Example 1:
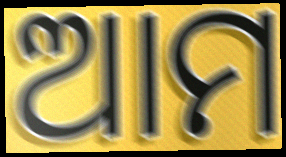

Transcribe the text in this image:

ଆମ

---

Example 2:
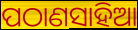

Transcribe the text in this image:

ପଠାଣସାହିଆ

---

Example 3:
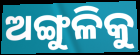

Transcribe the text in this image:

ଅଙ୍ଗୁଳିକୁ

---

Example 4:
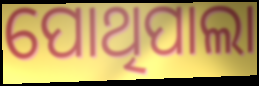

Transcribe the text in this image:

ପୋଥିପାଲା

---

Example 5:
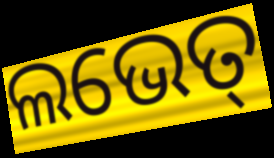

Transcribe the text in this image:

ଲଭେତ୍